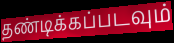
தண்டிக்கப்படவும்